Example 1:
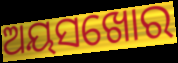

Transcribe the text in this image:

ଅୟସଖୋର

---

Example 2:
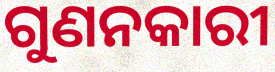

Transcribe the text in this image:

ଗୁଣନକାରୀ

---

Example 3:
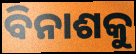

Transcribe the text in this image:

ବିନାଶକୁ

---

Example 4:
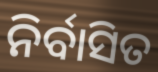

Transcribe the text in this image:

ନିର୍ବାସିତ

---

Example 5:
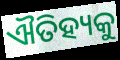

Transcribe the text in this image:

ଐତିହ୍ୟକୁ